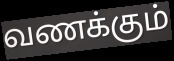
வணக்கும்